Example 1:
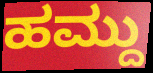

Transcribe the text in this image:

ಹಮ್ದು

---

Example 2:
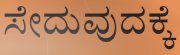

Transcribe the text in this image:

ಸೇದುವುದಕ್ಕೆ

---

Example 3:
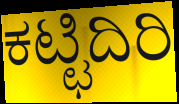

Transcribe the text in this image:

ಕಟ್ಟಿದಿರಿ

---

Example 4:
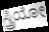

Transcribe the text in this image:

ಸ್ತ್ರಿಯೋ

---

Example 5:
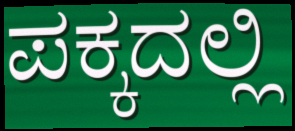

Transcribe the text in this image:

ಪಕ್ಕದಲ್ಲಿ